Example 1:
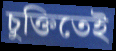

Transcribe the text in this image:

চুক্তিতেই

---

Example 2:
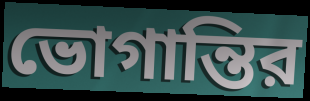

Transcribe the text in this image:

ভোগান্তির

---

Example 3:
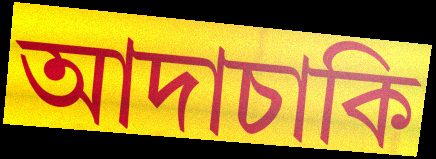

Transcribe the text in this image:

আদাচাকি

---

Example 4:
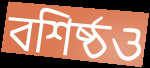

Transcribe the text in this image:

বশিষ্ঠও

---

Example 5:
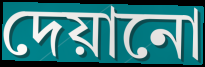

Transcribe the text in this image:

দেয়ানো